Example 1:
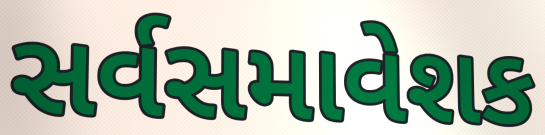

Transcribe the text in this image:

સર્વસમાવેશક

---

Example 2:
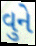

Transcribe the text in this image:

વુને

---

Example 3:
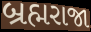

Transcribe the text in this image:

બ્રહ્મરાજા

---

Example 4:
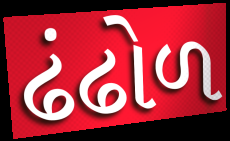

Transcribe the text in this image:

ઢંઢોળ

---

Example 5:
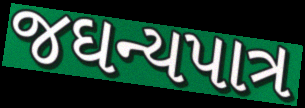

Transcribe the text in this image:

જઘન્યપાત્ર